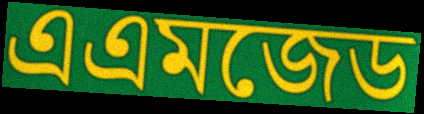
এএমজেড